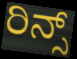
ರಿನ್ಸ್